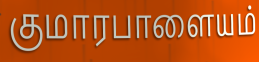
குமாரபாளையம்